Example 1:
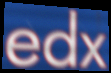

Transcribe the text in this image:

edx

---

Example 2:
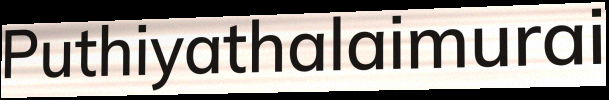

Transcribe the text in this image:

Puthiyathalaimurai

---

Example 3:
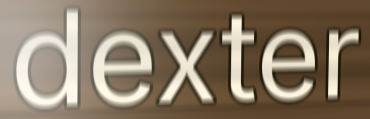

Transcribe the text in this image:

dexter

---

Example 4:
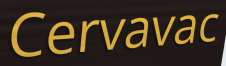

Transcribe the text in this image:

Cervavac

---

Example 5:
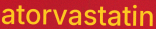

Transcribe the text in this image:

atorvastatin